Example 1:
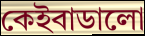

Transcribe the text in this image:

কেইবাডালো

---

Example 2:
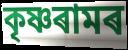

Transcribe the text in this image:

কৃষ্ণৰামৰ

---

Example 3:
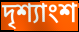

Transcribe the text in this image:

দৃশ্যাংশ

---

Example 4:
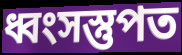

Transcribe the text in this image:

ধ্বংসস্তুপত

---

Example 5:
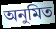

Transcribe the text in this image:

অনুমিত